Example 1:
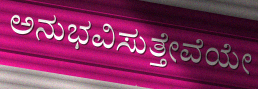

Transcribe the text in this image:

ಅನುಭವಿಸುತ್ತೇವೆಯೇ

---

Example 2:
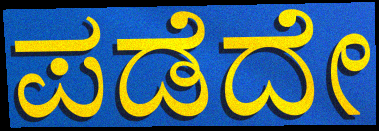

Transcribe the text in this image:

ಪಡೆದೇ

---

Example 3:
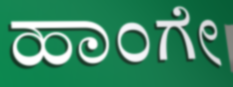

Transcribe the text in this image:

ಹಾಂಗೇ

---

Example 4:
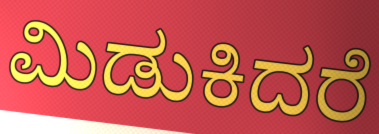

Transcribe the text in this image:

ಮಿಡುಕಿದರೆ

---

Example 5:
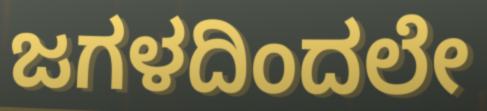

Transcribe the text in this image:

ಜಗಳದಿಂದಲೇ